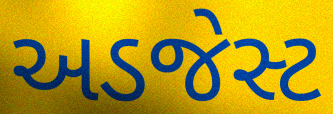
અડજેસ્ટ